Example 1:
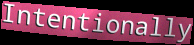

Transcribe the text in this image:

Intentionally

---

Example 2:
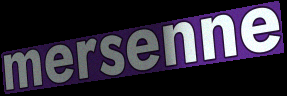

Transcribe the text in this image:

mersenne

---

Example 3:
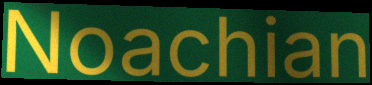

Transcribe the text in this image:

Noachian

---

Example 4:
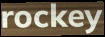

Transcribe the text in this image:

rockey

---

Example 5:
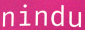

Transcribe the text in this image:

nindu